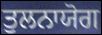
ਤੁਲਨਾਯੋਗ